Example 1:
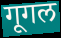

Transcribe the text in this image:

गूगल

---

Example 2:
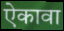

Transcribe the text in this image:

ऐकावा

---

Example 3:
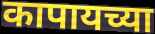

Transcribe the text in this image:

कापायच्या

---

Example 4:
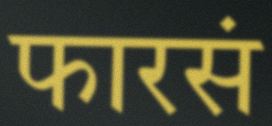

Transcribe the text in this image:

फारसं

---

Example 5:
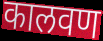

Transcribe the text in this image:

कालवण